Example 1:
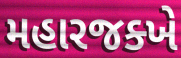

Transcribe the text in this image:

મહારજક્ખે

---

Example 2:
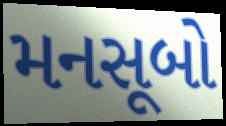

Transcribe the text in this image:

મનસૂબો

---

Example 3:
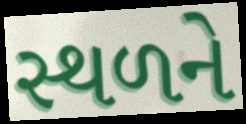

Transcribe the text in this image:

સ્‍થળને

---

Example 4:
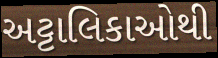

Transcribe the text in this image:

અટ્ટાલિકાઓથી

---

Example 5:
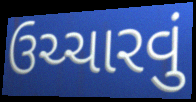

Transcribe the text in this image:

ઉચ્ચારવું